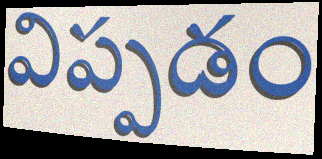
విప్పడం